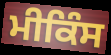
ਮੀਕਿੰਸ